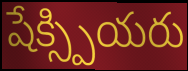
షేక్స్పియరు